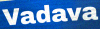
Vadava